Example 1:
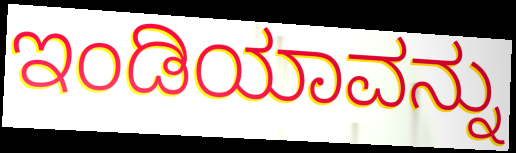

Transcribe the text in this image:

ಇಂಡಿಯಾವನ್ನು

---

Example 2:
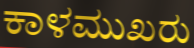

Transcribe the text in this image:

ಕಾಳಮುಖರು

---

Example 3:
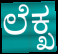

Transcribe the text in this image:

ಲೆಕ್ಖ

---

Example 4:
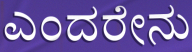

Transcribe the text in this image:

ಎಂದರೇನು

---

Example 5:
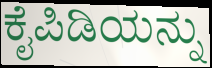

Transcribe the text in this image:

ಕೈಪಿಡಿಯನ್ನು